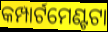
କମ୍ପାର୍ଟମେଣ୍ଟଟା